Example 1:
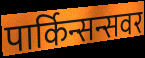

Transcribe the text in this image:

पार्किन्सन्सवर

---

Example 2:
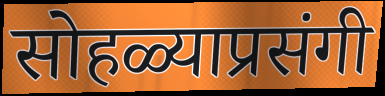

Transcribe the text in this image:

सोहळ्याप्रसंगी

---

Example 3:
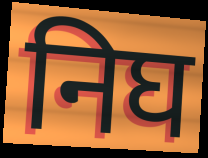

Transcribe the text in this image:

निघ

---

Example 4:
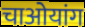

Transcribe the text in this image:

चाओयांग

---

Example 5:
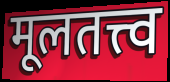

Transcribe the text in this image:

मूलतत्त्व